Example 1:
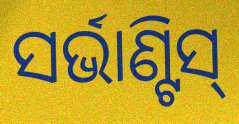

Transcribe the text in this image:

ସର୍ଭାଣ୍ଟିସ୍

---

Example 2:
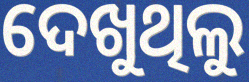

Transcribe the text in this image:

ଦେଖୁଥିଲୁ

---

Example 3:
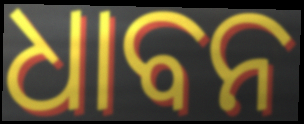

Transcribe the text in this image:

ଧାବନ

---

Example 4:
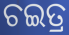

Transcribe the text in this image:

ଚଇତ୍ର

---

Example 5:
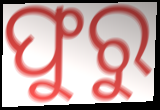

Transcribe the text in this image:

ଫୁରୁ